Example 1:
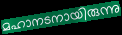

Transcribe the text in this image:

മഹാനടനായിരുന്നു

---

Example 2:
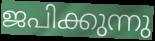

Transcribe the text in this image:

ജപിക്കുന്നു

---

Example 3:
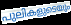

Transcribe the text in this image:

പുലികളുടെയും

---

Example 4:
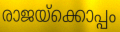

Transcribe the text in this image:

രാജയ്ക്കൊപ്പം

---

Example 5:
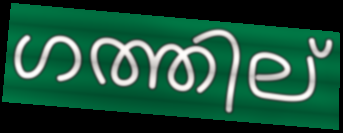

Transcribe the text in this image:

ഗത്തില്